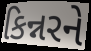
કિન્નરને